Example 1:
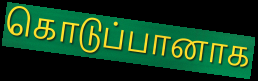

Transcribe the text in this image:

கொடுப்பானாக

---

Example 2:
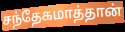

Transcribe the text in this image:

சந்தேகமாத்தான்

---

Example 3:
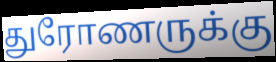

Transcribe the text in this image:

துரோணருக்கு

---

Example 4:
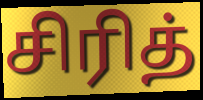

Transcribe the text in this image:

சிரித்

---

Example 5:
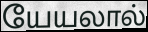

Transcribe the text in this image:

யேயலால்